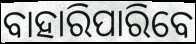
ବାହାରିପାରିବେ